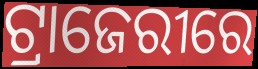
ଟ୍ରାଜେରୀରେ